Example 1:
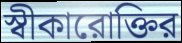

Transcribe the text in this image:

স্বীকারোক্তির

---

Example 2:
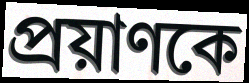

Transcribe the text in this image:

প্রয়াণকে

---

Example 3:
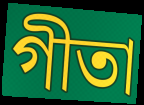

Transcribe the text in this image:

গীতা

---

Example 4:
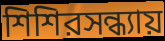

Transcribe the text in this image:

শিশিরসন্ধ্যায়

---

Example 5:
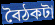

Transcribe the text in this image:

বৈঠকটা